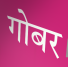
गोबर